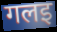
गलइ